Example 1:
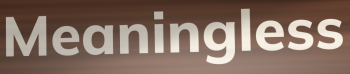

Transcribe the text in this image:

Meaningless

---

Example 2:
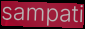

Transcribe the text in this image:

sampati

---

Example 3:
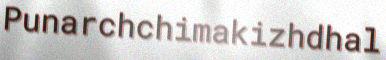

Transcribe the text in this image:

Punarchchimakizhdhal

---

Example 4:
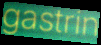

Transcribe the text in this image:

gastrin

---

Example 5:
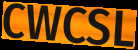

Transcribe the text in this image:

CWCSL